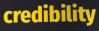
credibility